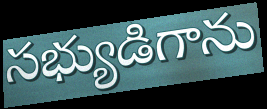
సభ్యుడిగాను